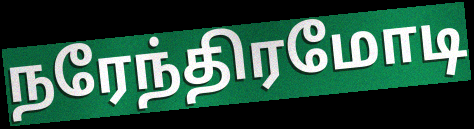
நரேந்திரமோடி